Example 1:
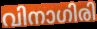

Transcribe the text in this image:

വിനാഗിരി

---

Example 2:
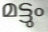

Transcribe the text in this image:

മട്ടും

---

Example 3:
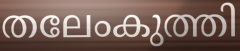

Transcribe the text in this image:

തലേംകുത്തി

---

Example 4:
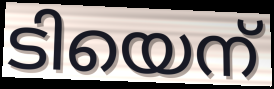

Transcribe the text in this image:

ടിയെന്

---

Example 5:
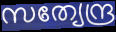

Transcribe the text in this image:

സത്യേന്ദ്ര